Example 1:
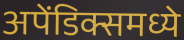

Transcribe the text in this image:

अपेंडिक्समध्ये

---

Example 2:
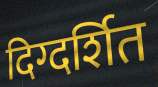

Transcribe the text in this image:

दिग्दर्शित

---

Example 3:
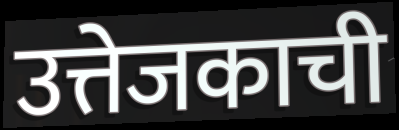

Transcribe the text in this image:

उत्तेजकाची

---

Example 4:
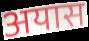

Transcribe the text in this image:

अयास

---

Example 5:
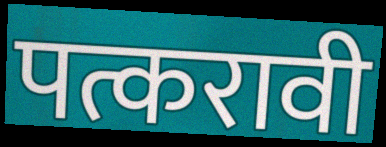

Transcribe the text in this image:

पत्करावी